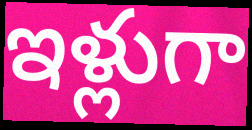
ఇళ్లుగా